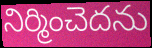
నిర్మించెదను